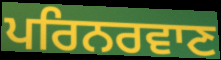
ਪਰਿਨਰਵਾਣ